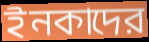
ইনকাদের